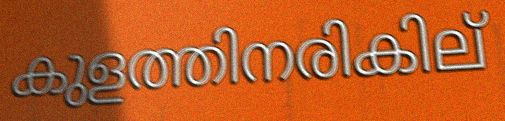
കുളത്തിനരികില്